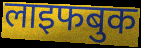
लाइफबुक